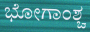
ಭೋಗಾಂಶ್ಚ